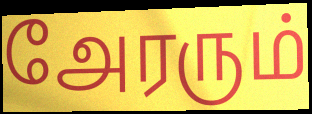
அேரரும்